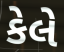
કેલે